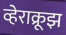
व्हेराक्रूझ